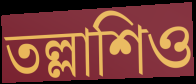
তল্লাশিও